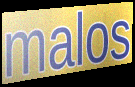
malos